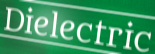
Dielectric